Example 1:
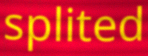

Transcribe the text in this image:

splited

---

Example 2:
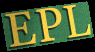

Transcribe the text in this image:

EPL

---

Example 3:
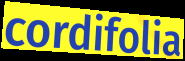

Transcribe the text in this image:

cordifolia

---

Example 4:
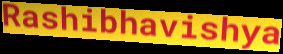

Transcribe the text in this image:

Rashibhavishya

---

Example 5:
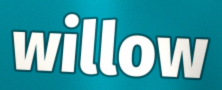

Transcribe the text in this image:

willow